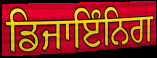
ਡਿਜਾਇੰਨਿਗ